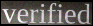
verified